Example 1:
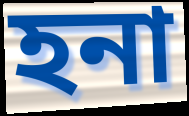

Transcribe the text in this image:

হনা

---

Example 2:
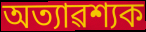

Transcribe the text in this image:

অত্যাৱশ্যক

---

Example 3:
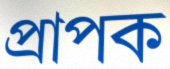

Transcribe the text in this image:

প্ৰাপক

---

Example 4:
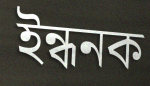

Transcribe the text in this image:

ইন্ধনক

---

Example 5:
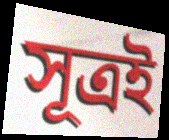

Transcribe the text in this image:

সূত্ৰই